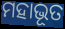
ମହାଭୂତ